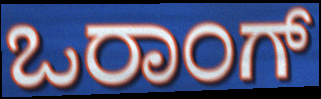
ಒರಾಂಗ್